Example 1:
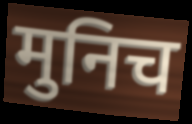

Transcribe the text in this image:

मुनिच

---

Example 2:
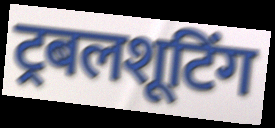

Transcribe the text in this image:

ट्रबलशूटिंग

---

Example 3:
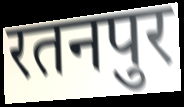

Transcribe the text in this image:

रतनपुर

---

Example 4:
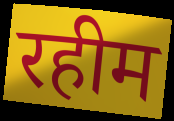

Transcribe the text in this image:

रहीम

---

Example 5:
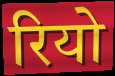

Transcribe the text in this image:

रियो